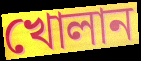
খোলান